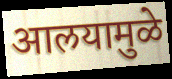
आलयामुळे